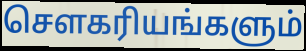
சௌகரியங்களும்